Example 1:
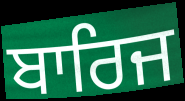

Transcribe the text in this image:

ਬਾਰਿਜ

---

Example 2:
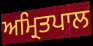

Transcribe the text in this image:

ਅਮ੍ਰਿਤਪਾਲ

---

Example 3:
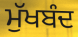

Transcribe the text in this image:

ਮੁੱਖਬੰਦ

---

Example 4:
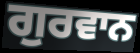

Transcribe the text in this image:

ਗੁਰਵਾਨ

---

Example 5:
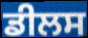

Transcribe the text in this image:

ਡੀਲਸ